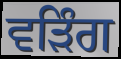
ਵੜਿੰਗ